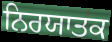
ਨਿਰਯਾਤਕ